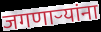
जगणाऱ्यांना